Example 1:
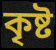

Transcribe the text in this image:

কৃষ্ট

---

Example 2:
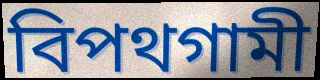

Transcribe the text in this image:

বিপথগামী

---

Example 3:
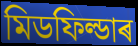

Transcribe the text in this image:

মিডফিল্ডাৰ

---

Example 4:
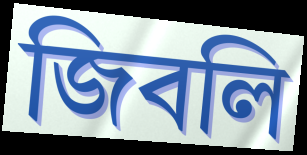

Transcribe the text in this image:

জিবলি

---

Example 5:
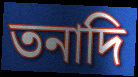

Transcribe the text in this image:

তনাদি